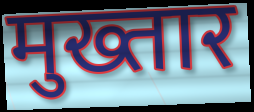
मुख्तार